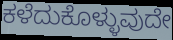
ಕಳೆದುಕೊಳ್ಳುವುದೇ